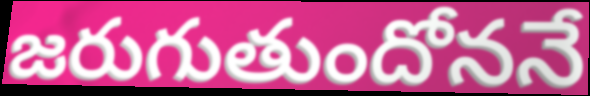
జరుగుతుందోననే